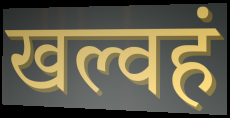
खल्वहं